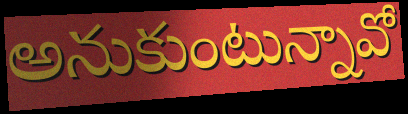
అనుకుంటున్నావో